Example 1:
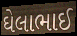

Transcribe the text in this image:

ઘેલાભાઈ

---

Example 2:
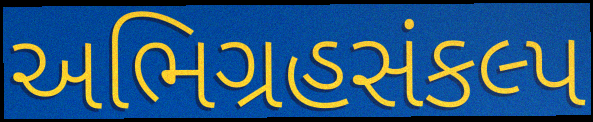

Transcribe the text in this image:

અભિગ્રહસંકલ્પ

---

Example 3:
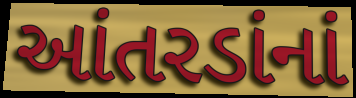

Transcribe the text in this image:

આંતરડાંનાં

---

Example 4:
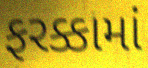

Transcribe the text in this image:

ફરક્કામાં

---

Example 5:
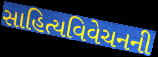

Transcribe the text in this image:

સાહિત્યવિવેચનની